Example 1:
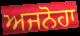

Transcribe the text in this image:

ਅਜਨੋਹਾ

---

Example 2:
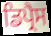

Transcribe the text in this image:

ਡਿਪ੍ਰੈਸ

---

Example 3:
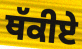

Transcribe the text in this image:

ਥੱਕੀਏ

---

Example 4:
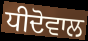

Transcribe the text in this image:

ਧੀਦੋਵਾਲ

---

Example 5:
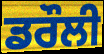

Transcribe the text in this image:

ਡਰੌਲੀ